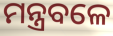
ମନ୍ତ୍ରବଳେ